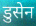
डुसेन